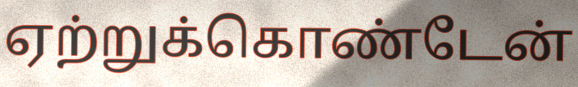
ஏற்றுக்கொண்டேன்